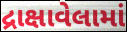
દ્રાક્ષાવેલામાં